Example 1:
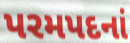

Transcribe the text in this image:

પરમપદનાં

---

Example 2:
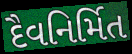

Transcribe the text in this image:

દૈવનિર્મિત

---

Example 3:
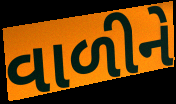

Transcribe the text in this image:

વાળીને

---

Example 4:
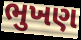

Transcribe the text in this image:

ભુખણ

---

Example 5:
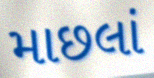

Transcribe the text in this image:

માછલાં